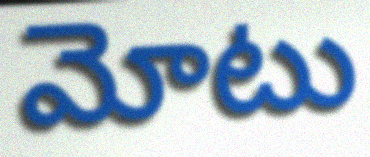
మోటు